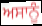
ਅਸਾਨੂੰ